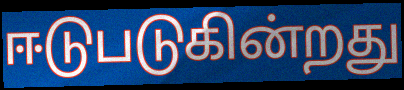
ஈடுபடுகின்றது